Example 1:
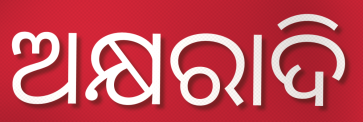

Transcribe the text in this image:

ଅକ୍ଷରାଦି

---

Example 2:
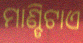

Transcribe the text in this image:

ମାଣ୍ଡିଟାଏ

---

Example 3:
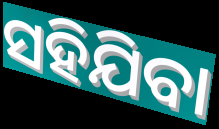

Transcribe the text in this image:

ସହିଯିବା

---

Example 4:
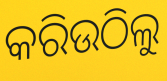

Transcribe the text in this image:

କରିଉଠିଲୁ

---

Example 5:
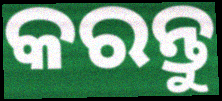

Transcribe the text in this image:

କରନ୍ତୁ